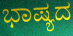
ಭಾಷ್ಯದ